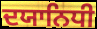
ਦਯਾਨਿਧੀ